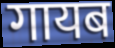
गायब